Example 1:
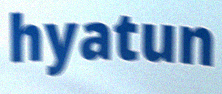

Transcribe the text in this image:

hyatun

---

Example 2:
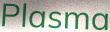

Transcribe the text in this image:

Plasma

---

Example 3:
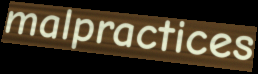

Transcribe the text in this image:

malpractices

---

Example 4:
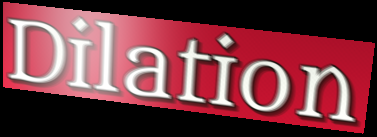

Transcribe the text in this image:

Dilation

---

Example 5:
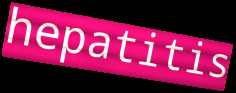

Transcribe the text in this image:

hepatitis